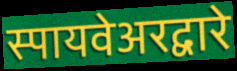
स्पायवेअरद्वारे